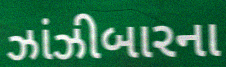
ઝાંઝીબારના